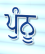
ਪੁੰਨੂ